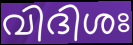
വിദിശഃ